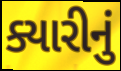
ક્યારીનું